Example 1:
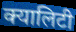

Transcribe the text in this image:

क्यालिटी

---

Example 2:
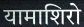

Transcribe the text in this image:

यामाशिरो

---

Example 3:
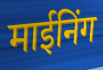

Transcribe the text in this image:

माईनिंग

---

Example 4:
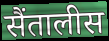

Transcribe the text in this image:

सैंतालीस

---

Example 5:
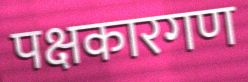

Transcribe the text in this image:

पक्षकारगण